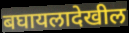
बघायलादेखील